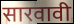
सारवावी